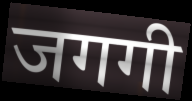
जगगी